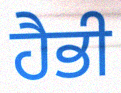
ਹੈਭੀ